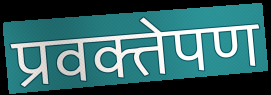
प्रवक्तेपण